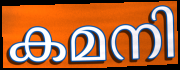
കമനി